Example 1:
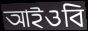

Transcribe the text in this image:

আইওবি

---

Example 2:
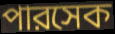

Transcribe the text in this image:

পারসেক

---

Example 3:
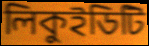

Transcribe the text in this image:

লিকুইডিটি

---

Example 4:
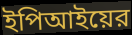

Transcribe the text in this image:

ইপিআইয়ের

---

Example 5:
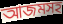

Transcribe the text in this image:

আজমসহ